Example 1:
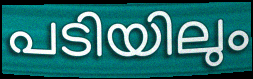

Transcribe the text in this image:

പടിയിലും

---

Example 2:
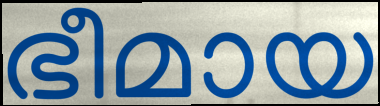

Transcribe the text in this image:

ഭീമായ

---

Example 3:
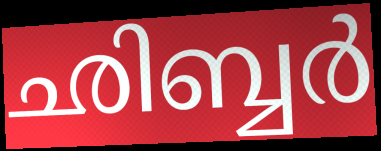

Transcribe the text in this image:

ഛിബ്ബർ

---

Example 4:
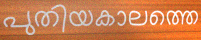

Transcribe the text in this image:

പുതിയകാലത്തെ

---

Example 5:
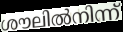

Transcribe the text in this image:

ശൗലിൽനിന്ന്